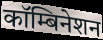
कॉम्बिनेशन